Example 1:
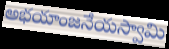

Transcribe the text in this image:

అభయాంజనేయస్వామి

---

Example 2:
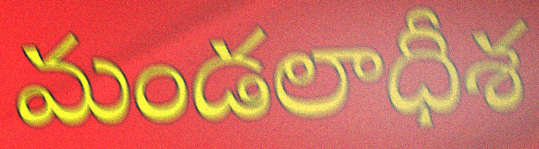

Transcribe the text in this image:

మండలాధీశ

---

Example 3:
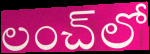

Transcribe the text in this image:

లంచ్‌లో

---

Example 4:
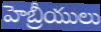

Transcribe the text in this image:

హెబ్రీయులు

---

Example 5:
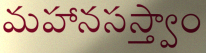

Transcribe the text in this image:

మహానసస్త్వాం